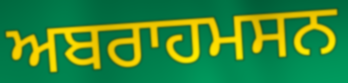
ਅਬਰਾਹਮਸਨ